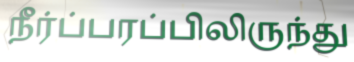
நீர்ப்பரப்பிலிருந்து